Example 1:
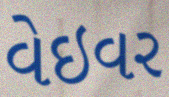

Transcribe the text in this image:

વેઇવર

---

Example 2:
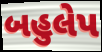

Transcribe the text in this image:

બહુલેપ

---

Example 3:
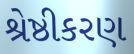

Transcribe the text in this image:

શ્રેષ્ઠીકરણ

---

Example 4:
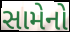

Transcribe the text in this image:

સામેનો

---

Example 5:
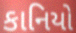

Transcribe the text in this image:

કાનિયો